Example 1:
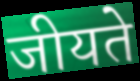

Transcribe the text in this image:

जीयते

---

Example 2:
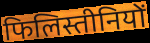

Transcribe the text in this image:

फिलिस्तीनियों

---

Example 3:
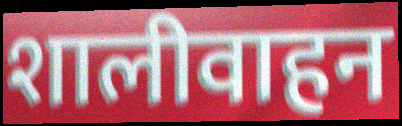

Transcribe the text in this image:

शालीवाहन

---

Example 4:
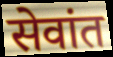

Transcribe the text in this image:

सेवांत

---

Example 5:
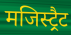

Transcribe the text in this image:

मजिस्ट्रैट